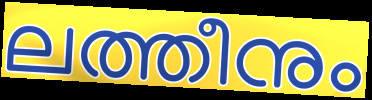
ലത്തീനും